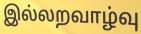
இல்லறவாழ்வு